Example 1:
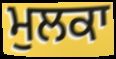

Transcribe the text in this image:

ਮੁਲਕਾ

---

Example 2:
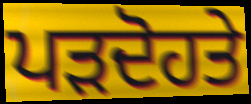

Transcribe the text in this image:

ਪੜਦੋਹਤੇ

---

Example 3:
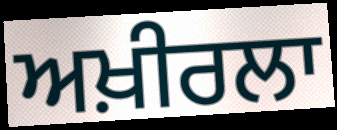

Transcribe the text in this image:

ਅਖ਼ੀਰਲਾ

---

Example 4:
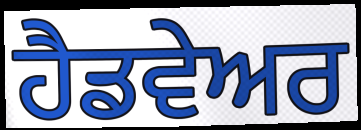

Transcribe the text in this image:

ਹੈਡਵੇਅਰ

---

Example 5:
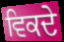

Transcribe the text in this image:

ਵਿਕਦੇ